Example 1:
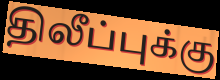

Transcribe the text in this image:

திலீப்புக்கு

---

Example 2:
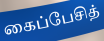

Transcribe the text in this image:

கைப்பேசித்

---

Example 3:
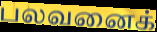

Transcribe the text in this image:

பலவனைக்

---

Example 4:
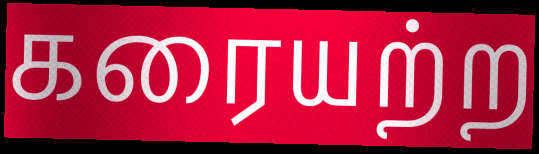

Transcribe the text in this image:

கரையற்ற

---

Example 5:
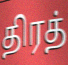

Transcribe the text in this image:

திரத்